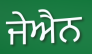
ਜੇਐਨ